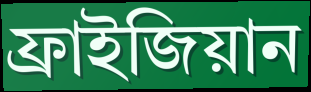
ফ্রাইজিয়ান